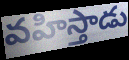
వహిస్తాడు